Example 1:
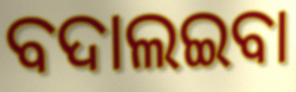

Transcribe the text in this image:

ବଦାଲଇବା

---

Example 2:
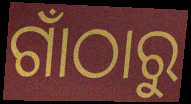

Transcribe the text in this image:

ଗାଁଠାରୁ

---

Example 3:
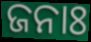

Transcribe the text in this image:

ଜନାଃ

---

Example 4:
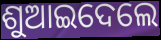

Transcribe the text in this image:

ଶୁଆଇଦେଲେ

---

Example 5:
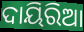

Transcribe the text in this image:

ଦାୟିରିଆ